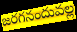
జరగనందువల్ల